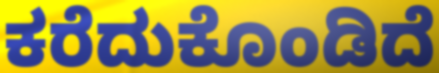
ಕರೆದುಕೊಂಡಿದೆ